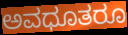
ಅವಧೂತರೂ